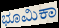
ಭೂಮಿಕಾ